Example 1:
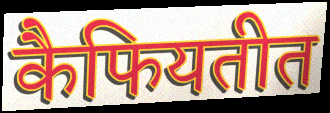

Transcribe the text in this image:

कैफियतीत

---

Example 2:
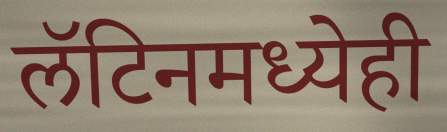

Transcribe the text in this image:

लॅटिनमध्येही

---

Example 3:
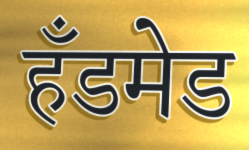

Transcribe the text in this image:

हॅंडमेड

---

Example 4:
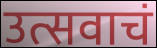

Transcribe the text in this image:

उत्सवाचं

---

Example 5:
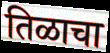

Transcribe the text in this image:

तिळाचा